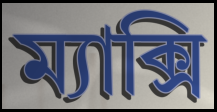
ম্যাক্সি